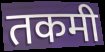
तकमी